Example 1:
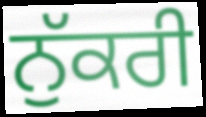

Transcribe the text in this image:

ਨੁੱਕਰੀ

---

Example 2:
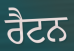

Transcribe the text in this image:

ਰੈਟਨ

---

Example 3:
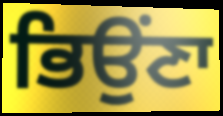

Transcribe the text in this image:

ਭਿਉਂਣਾ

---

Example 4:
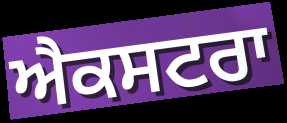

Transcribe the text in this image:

ਐਕਸਟਰਾ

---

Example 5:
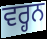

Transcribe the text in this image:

ਵਰ੍ਹਨ